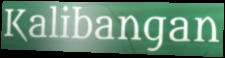
Kalibangan